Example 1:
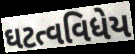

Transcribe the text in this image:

ઘટત્વવિધેય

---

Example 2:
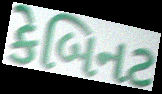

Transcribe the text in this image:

કેબિનટ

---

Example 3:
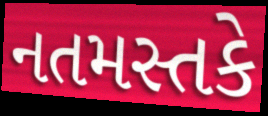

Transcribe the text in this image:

નતમસ્તકે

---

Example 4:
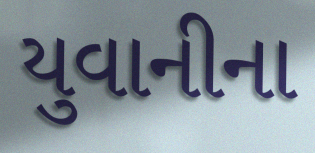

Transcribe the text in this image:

યુવાનીના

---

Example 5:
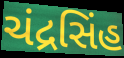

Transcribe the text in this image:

ચંદ્રસિંહ